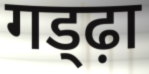
गड्ढ़ा